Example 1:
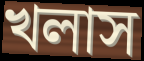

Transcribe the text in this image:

খলাস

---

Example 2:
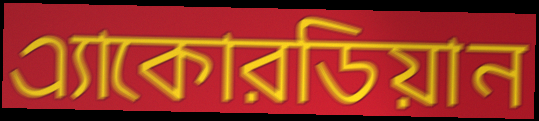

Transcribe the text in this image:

এ্যাকোরডিয়ান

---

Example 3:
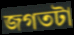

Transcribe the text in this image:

জগতটা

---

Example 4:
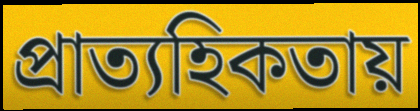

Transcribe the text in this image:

প্রাত্যহিকতায়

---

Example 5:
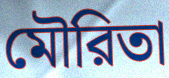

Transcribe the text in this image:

মৌরিতা